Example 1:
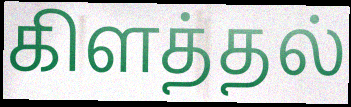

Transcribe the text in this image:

கிளத்தல்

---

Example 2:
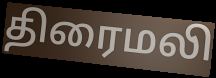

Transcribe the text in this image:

திரைமலி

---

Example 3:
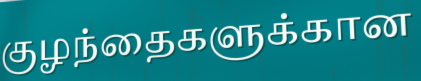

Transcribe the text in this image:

குழந்தைகளுக்கான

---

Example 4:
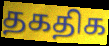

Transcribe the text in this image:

தகதிக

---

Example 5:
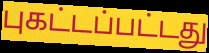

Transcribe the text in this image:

புகட்டப்பட்டது